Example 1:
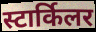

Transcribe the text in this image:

स्टार्किलर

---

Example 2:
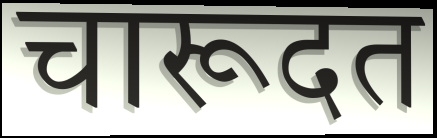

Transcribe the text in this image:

चारूदत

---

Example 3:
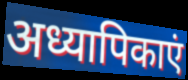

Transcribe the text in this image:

अध्यापिकाएं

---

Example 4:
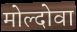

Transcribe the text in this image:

मोल्दोवा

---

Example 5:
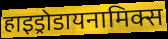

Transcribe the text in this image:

हाइड्रोडायनामिक्स